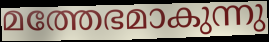
മത്തേഭമാകുന്നു